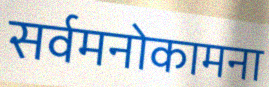
सर्वमनोकामना